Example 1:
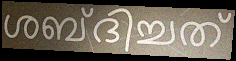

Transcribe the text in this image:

ശബ്ദിച്ചത്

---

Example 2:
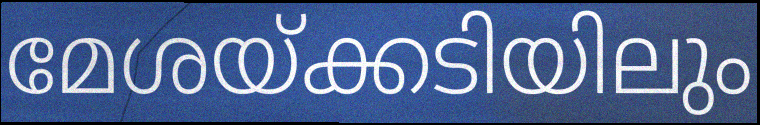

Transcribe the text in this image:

മേശയ്ക്കടിയിലും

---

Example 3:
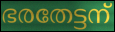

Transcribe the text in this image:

ഭരതേട്ടന്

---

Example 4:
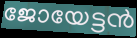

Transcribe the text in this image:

ജോയേട്ടൻ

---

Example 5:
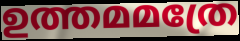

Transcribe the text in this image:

ഉത്തമമത്രേ